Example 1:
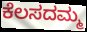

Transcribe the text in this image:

ಕೆಲಸದಮ್ಮ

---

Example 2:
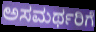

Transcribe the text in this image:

ಅಸಮರ್ಥರಿಗೆ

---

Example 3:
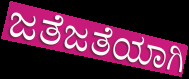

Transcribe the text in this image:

ಜತೆಜತೆಯಾಗಿ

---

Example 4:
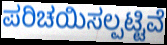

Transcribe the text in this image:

ಪರಿಚಯಿಸಲ್ಪಟ್ಟಿವೆ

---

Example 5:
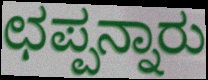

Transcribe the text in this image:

ಛಪ್ಪನ್ನಾರು